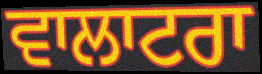
ਵਾਲਾਟਰਾ